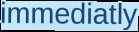
immediatly